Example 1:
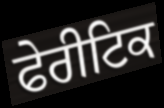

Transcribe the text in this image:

ਫੇਰੀਟਿਕ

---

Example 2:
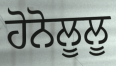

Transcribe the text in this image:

ਹੋਨੋਲੂਲੂ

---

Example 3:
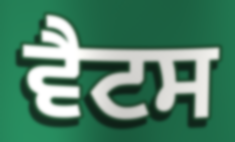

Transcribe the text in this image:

ਵੈਟਸ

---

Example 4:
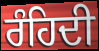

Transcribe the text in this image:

ਰੰਹਿਦੀ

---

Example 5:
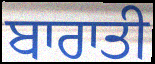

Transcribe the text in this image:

ਬਾਰਾਤੀ